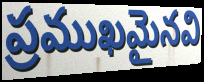
ప్రముఖమైనవి